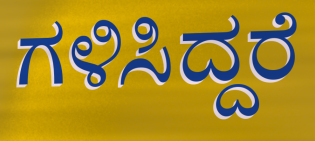
ಗಳಿಸಿದ್ದರೆ